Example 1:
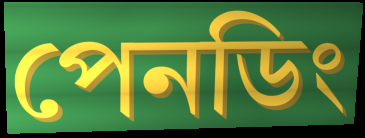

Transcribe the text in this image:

পেনডিং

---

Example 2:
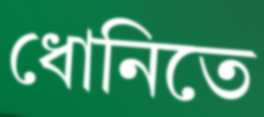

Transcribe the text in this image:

ধোনিতে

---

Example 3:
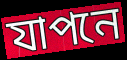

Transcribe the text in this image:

যাপনে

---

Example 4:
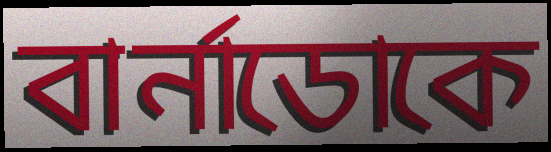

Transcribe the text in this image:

বার্নাডোকে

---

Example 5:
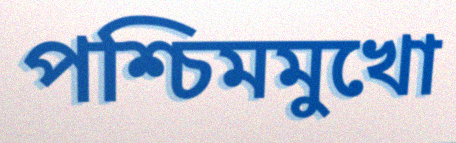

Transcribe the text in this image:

পশ্চিমমুখো